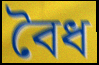
বৈধ